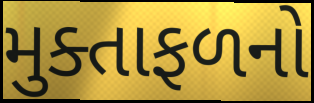
મુક્તાફળનો